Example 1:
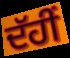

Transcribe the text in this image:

ਦੱਹੀਂ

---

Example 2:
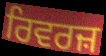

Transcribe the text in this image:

ਰਿਵਰਜ਼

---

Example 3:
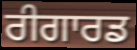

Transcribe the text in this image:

ਰੀਗਾਰਡ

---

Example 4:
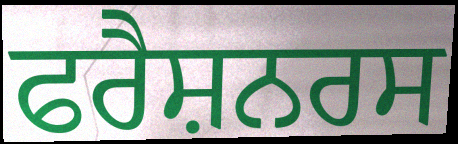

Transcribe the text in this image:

ਫਰੈਸ਼ਨਰਸ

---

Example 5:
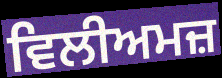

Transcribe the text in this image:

ਵਿਲੀਅਮਜ਼